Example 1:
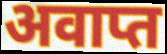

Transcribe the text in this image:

अवाप्त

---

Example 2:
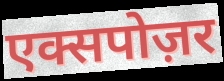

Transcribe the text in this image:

एक्सपोज़र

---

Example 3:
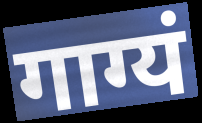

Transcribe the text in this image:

गाग्यं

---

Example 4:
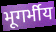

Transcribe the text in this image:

भूगर्भीय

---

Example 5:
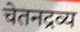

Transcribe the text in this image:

चेतनद्रव्य